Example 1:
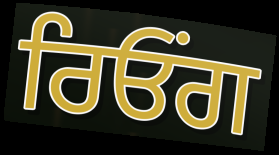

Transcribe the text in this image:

ਰਿਓਂਗ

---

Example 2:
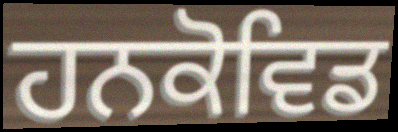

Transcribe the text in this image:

ਹਨਕੋਵਿਡ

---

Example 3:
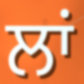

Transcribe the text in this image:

ਲਾਂ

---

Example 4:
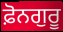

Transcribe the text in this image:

ਫ਼ੋਨਗੁਰੂ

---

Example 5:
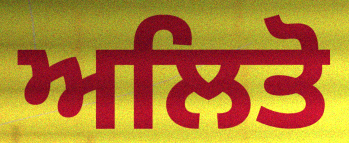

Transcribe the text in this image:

ਅਲਿਤੋ